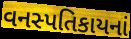
વનસ્પતિકાયનાં